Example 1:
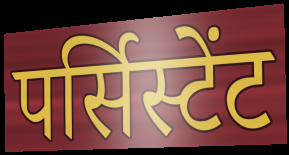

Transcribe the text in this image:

पर्सिस्टेंट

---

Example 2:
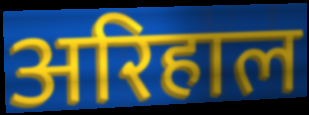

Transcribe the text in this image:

अरिहाल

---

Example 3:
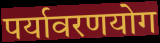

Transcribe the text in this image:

पर्यावरणयोग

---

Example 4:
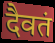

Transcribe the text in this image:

दैवतं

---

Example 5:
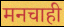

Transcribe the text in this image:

मनचाही